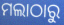
ମଲାଠାରୁ